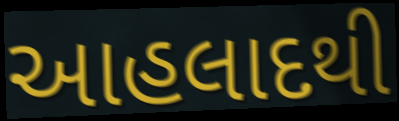
આહલાદથી